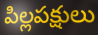
పిల్లపక్షులు